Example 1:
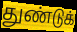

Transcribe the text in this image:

துண்டுக்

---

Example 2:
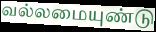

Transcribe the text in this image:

வல்லமையுண்டு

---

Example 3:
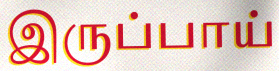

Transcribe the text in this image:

இருப்பாய்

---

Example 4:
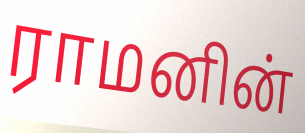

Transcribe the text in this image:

ராமனின்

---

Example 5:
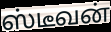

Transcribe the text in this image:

ஸ்டீவன்